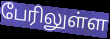
பேரிலுள்ள